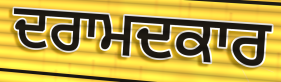
ਦਰਾਮਦਕਾਰ